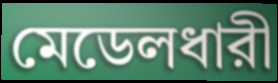
মেডেলধারী